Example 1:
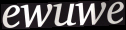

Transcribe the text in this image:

ewuwe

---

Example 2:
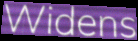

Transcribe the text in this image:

Widens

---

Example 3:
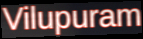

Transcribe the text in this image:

Vilupuram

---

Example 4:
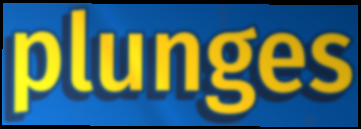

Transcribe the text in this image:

plunges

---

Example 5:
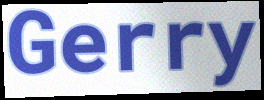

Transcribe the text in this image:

Gerry